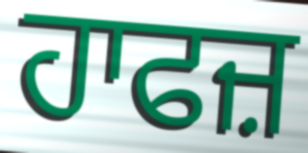
ਹਾਫਜ਼